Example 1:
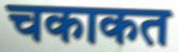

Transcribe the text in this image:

चकाकत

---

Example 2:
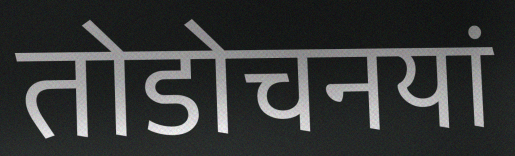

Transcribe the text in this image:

तोडोचनयां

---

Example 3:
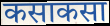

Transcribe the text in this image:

कसाकसा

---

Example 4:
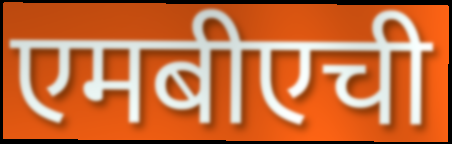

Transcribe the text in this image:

एमबीएची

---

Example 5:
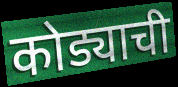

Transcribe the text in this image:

कोड्याची